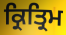
ਕ੍ਰਿਤ੍ਰਿਮ